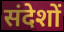
संदेशों